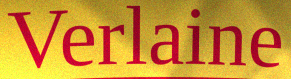
Verlaine